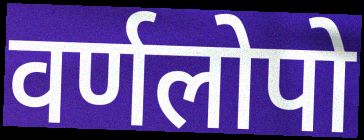
वर्णलोपो